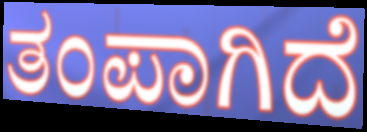
ತಂಪಾಗಿದೆ